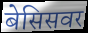
बेसिसवर